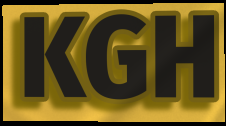
KGH